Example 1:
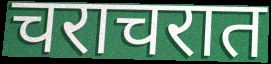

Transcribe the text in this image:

चराचरात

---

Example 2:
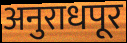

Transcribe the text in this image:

अनुराधपूर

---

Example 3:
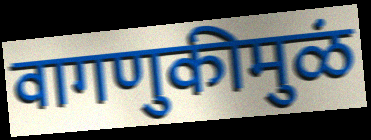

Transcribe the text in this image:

वागणुकीमुळं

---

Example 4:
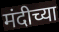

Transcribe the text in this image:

मंदीच्या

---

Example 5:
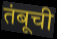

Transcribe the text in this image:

तंबूची